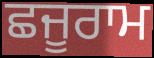
ਛਜੂਰਾਮ